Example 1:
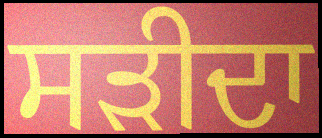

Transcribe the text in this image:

ਸੜੀਦਾ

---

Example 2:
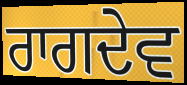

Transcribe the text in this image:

ਰਾਗਦੇਵ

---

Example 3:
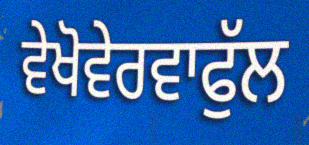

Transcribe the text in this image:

ਵੇਖੋਵੇਰਵਾਫੁੱਲ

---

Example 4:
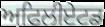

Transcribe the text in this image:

ਅਫਿਲੀਏਟਡ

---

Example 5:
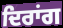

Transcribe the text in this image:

ਦਿਰਾਂਗ